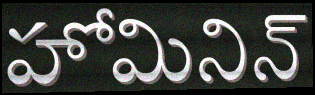
హోమినిన్